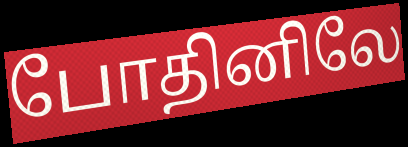
போதினிலே